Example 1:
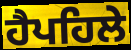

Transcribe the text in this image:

ਹੈਪਹਿਲੇ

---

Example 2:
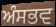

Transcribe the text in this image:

ਅੰਸਭਵ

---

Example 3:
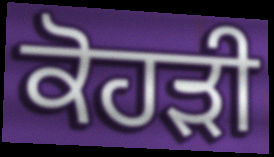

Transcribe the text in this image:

ਕੋਹੜੀ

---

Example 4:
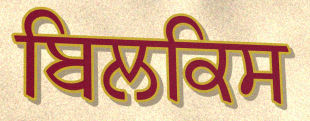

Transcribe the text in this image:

ਬਿਲਕਿਸ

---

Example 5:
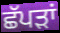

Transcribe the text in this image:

ਛੱਪੜਾਂ